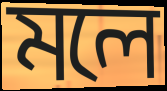
মলে